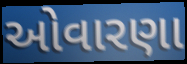
ઓવારણા